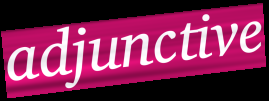
adjunctive